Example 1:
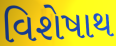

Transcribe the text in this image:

વિશેષાથ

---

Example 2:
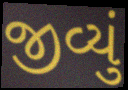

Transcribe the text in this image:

જીવ્યું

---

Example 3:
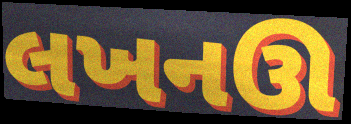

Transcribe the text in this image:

લખનઊ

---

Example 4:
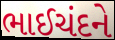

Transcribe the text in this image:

ભાઈચંદને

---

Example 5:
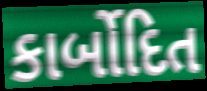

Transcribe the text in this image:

કાર્બોદિત